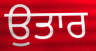
ਉਤਾਰ